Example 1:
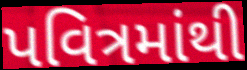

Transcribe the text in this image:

પવિત્રમાંથી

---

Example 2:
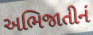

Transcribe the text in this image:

અભિજાતીનં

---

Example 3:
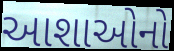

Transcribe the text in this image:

આશાઓનો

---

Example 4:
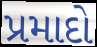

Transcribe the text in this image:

પ્રમાદો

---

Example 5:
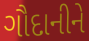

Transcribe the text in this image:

ગૌદાનીને